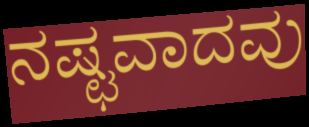
ನಷ್ಟವಾದವು